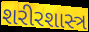
શરીરશાસ્ત્ર